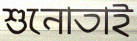
শুনোতাই